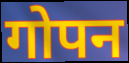
गोपन